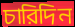
চারিদিন